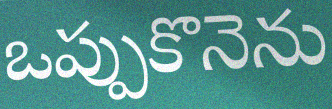
ఒప్పుకొనెను